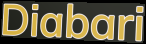
Diabari